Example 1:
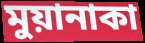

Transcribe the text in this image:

মুয়ানাকা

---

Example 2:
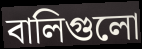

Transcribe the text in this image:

বালিগুলো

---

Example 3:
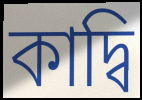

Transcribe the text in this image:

কাদ্বি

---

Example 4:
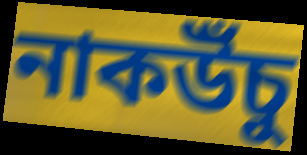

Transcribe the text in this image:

নাকউঁচু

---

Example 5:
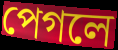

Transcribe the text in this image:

পেগলে